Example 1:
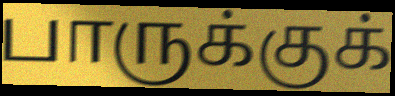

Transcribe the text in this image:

பாருக்குக்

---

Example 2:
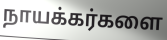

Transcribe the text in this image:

நாயக்கர்களை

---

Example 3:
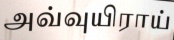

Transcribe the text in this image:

அவ்வுயிராய்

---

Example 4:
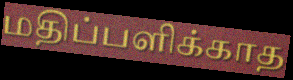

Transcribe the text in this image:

மதிப்பளிக்காத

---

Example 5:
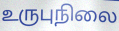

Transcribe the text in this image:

உருபுநிலை